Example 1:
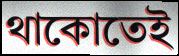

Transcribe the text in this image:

থাকোতেই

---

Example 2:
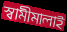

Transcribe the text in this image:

স্বামীমালাই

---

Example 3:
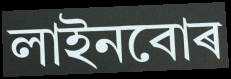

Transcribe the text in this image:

লাইনবোৰ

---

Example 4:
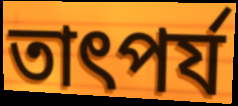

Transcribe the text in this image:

তাৎপৰ্য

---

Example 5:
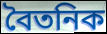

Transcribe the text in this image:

বৈতনিক